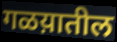
गळय़ातील